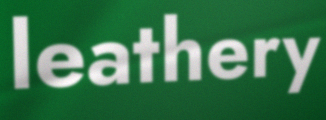
leathery